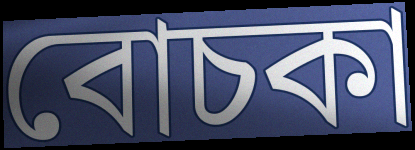
বোচকা